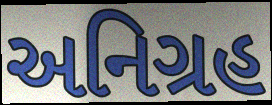
અનિગ્રહ